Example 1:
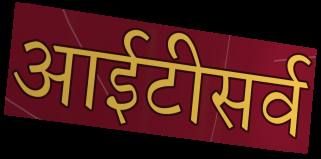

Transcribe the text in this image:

आईटीसर्व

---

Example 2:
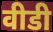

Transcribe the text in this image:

वीडी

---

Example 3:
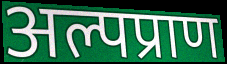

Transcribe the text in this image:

अल्पप्राण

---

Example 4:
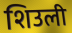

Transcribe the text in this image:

शिउली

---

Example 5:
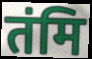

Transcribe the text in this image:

तंमि